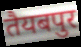
तैयबपुर